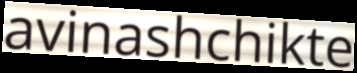
avinashchikte